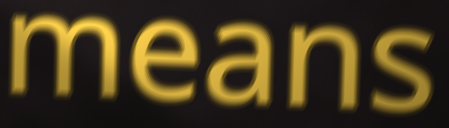
means